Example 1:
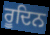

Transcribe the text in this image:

ਰੂਦਿਨ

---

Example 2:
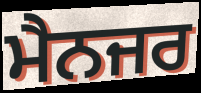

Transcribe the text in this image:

ਮੈਨਜਰ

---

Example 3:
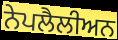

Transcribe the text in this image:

ਨੇਪਲੈਲੀਅਨ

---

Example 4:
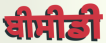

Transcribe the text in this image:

ਬੀਸੀਡੀ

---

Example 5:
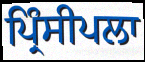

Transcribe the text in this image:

ਪ੍ਰਿੰਸੀਪਲਾ